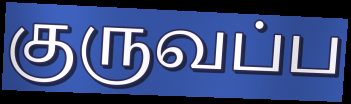
குருவப்ப